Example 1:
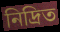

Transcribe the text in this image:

নিদ্রিত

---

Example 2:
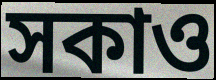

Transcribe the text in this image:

সকাও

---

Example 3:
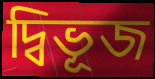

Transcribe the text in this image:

দ্বিভূজ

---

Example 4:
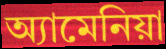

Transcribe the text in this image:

অ্যামেনিয়া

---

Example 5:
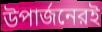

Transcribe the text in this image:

উপার্জনেরই